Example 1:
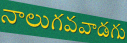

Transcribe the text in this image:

నాలుగవవాడగు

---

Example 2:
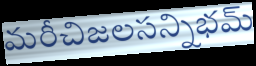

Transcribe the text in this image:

మరీచిజలసన్నిభమ్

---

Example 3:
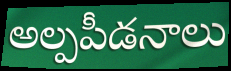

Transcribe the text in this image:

అల్పపీడనాలు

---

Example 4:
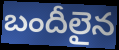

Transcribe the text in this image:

బందీలైన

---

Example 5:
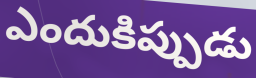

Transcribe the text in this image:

ఎందుకిప్పుడు